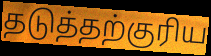
தடுத்தற்குரிய